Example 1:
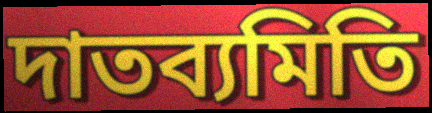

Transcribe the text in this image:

দাতব্যমিতি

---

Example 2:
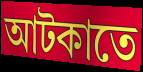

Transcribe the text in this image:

আটকাতে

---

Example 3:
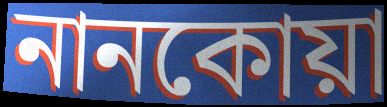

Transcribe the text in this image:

নানকোয়া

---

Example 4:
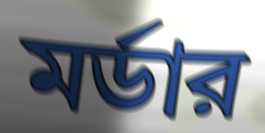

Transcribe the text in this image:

মর্ডার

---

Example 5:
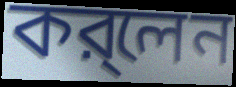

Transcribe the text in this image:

কর্‌লেন